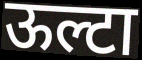
ऊल्टा